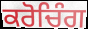
ਕਰੋਚਿੰਗ